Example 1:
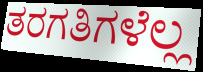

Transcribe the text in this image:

ತರಗತಿಗಳೆಲ್ಲ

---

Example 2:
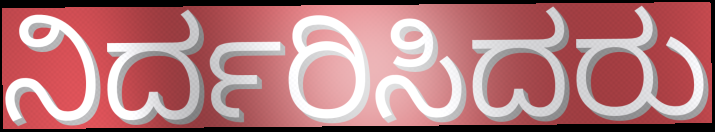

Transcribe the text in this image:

ನಿರ್ದರಿಸಿದರು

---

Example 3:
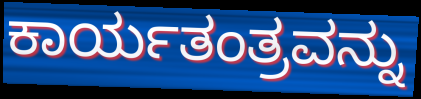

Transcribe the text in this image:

ಕಾರ್ಯತಂತ್ರವನ್ನು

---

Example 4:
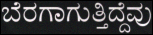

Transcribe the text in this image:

ಬೆರಗಾಗುತ್ತಿದ್ದೆವು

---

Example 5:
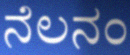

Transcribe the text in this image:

ನೆಲನಂ